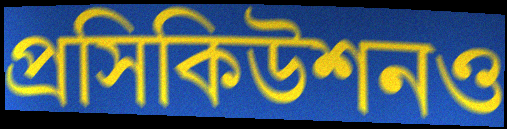
প্রসিকিউশনও